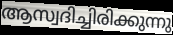
ആസ്വദിച്ചിരിക്കുന്നു